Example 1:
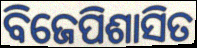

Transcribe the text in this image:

ବିଜେପିଶାସିତ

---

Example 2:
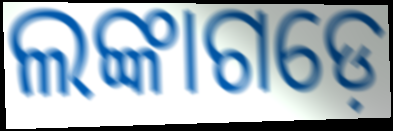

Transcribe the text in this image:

ଲଙ୍କାଗଡ଼େ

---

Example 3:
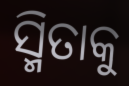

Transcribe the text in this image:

ସ୍ମିତାକୁ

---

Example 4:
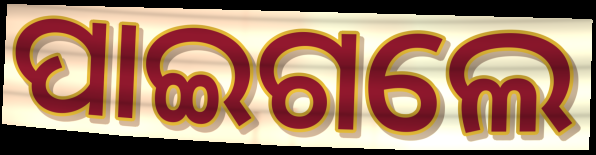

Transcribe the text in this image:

ପାଇଗଲେ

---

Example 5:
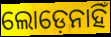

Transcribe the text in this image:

ଲୋଡ଼େନାହିଁ